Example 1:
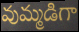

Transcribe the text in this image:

వుమ్మడిగా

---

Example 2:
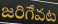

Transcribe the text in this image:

జరిగేవట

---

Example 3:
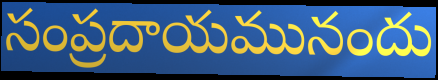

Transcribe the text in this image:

సంప్రదాయమునందు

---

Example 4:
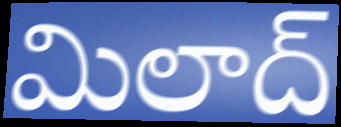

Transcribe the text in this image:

మిలాద్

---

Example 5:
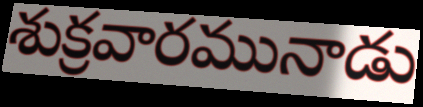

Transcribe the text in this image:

శుక్రవారమునాడు